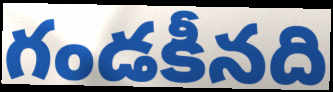
గండకీనది